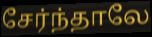
சேர்ந்தாலே